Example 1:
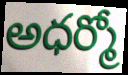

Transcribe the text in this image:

అధర్మో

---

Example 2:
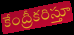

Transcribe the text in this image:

కేంద్రీకరిస్తూ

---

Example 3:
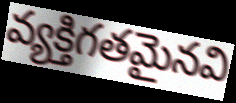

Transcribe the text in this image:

వ్యక్తిగతమైనవి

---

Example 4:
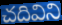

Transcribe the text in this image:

చదివిని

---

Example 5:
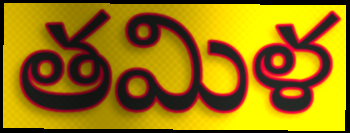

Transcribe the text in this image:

తమిళ